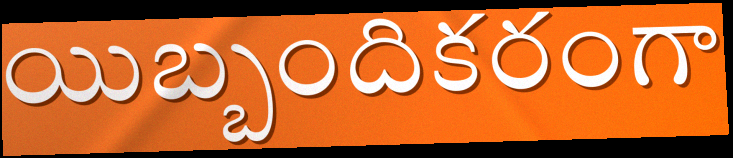
యిబ్బందికరంగా